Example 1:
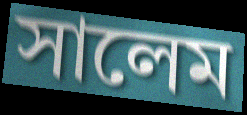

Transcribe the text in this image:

সালেম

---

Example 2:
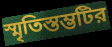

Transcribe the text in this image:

স্মৃতিস্তম্ভটির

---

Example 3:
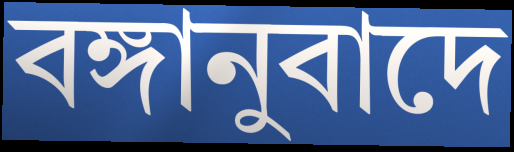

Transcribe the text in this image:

বঙ্গানুবাদে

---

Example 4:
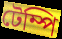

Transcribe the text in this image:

টেম্পি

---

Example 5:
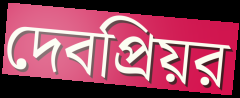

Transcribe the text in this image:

দেবপ্রিয়র